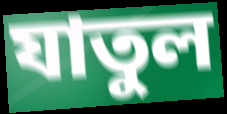
যাতুল